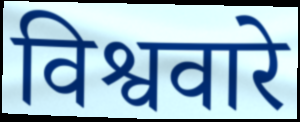
विश्ववारे